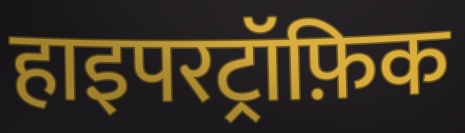
हाइपरट्रॉफ़िक